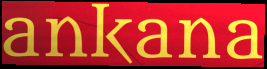
ankana